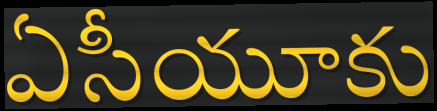
ఏసీయూకు